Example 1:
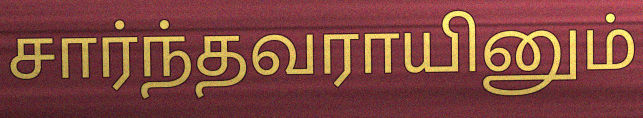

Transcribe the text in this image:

சார்ந்தவராயினும்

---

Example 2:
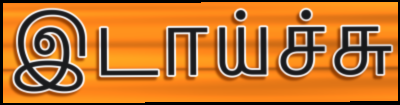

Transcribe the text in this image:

இடாய்ச்சு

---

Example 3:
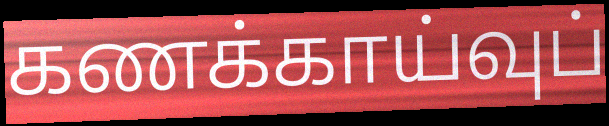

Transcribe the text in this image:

கணக்காய்வுப்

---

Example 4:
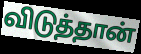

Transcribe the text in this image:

விடுத்தான்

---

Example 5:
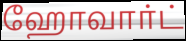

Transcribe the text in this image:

ஹோவார்ட்